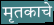
मृतकाचे